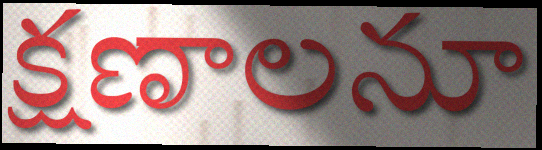
క్షణాలనూ